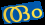
രും